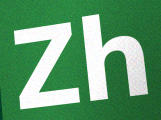
Zh